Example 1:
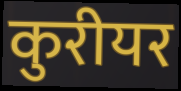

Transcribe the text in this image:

कुरीयर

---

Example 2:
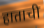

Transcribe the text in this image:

हाताची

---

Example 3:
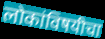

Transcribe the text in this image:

लोकांविषयीचा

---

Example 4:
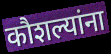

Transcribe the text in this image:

कौशल्यांना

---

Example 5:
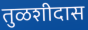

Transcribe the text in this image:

तुळशीदास